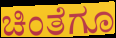
ಚಿಂತೆಗೂ